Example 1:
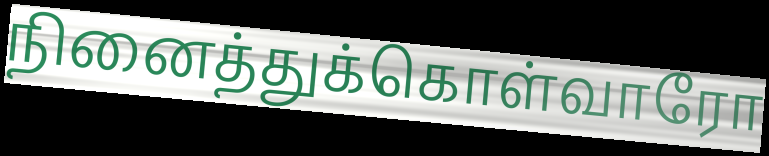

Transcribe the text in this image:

நினைத்துக்கொள்வாரோ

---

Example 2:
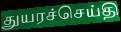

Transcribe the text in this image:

துயரச்செய்தி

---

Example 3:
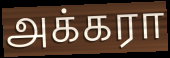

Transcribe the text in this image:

அக்கரா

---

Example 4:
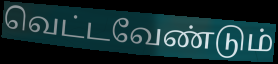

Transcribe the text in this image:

வெட்டவேண்டும்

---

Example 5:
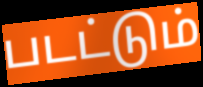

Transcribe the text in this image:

படட்டும்